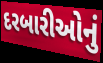
દરબારીઓનું